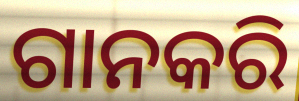
ଗାନକରି